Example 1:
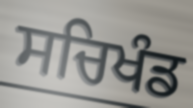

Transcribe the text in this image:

ਸਚਿਖੰਡ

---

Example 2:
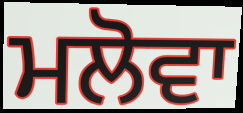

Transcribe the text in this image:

ਮਲੋਵਾ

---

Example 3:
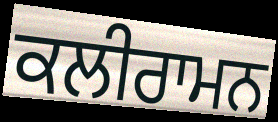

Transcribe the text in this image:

ਕਲੀਰਾਮਨ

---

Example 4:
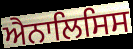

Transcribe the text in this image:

ਐਨਾਲਿਸਿਸ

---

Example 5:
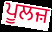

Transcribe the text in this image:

ਪੂਲਜ਼